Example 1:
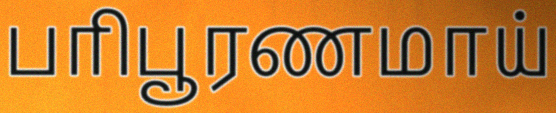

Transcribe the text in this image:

பரிபூரணமாய்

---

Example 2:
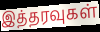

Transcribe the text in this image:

இத்தரவுகள்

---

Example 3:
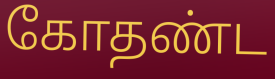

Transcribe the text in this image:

கோதண்ட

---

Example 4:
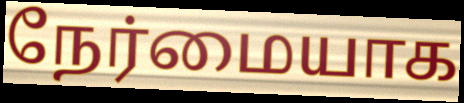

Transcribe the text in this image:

நேர்மையாக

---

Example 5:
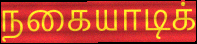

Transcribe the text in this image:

நகையாடிக்